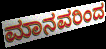
ಮಾನವರಿಂದ